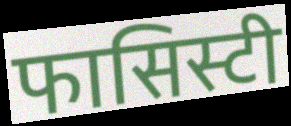
फासिस्टी